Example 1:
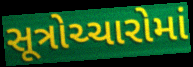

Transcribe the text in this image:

સૂત્રોચ્ચારોમાં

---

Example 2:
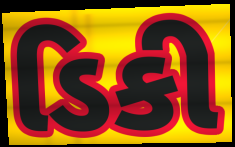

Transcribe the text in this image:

ડિકી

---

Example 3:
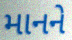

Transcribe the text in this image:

માનને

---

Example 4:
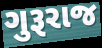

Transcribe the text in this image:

ગુરૂરાજ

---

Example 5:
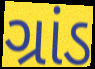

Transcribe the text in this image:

ગ્રાંડ